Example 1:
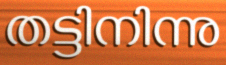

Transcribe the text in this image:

തട്ടിനിന്നു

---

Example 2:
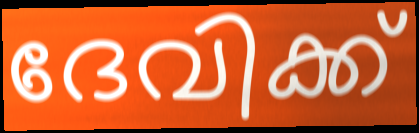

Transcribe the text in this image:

ദേവിക്ക്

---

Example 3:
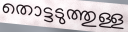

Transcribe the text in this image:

തൊട്ടടുത്തുള്ള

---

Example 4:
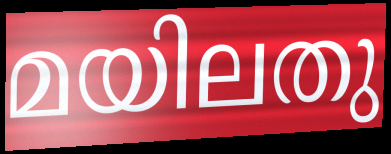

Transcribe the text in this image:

മയിലതു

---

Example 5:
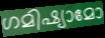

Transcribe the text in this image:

ഗമിഷ്യാമോ